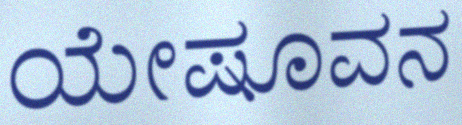
ಯೇಷೂವನ